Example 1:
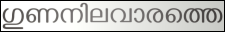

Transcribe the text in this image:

ഗുണനിലവാരത്തെ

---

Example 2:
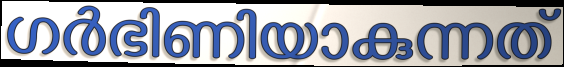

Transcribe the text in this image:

ഗർഭിണിയാകുന്നത്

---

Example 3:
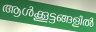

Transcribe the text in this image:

ആൾക്കൂട്ടങ്ങളിൽ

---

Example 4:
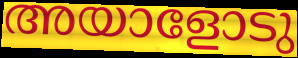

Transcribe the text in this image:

അയാളോടു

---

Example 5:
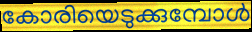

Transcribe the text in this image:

കോരിയെടുക്കുമ്പോൾ